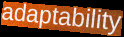
adaptability